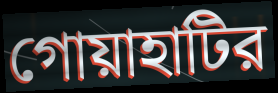
গোয়াহাটির